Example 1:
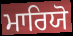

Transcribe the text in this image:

ਮਾਰਿਯੋ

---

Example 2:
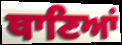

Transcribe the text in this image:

ਥਾਣਿਆਂ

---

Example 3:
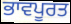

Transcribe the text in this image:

ਭਾਵਪੂਰਤ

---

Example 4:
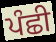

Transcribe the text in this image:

ਪੰਛੀ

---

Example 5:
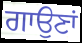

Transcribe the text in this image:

ਗਾਉਣਾਂ